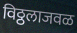
विठ्ठलाजवळ